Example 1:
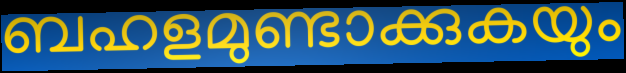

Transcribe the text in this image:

ബഹളമുണ്ടാക്കുകയും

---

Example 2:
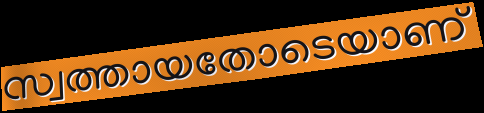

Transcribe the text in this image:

സ്വത്തായതോടെയാണ്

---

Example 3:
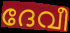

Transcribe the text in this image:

ദേവീ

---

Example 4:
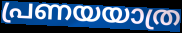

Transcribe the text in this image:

പ്രണയയാത്ര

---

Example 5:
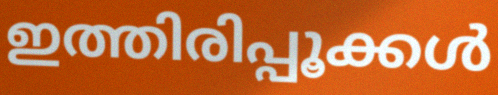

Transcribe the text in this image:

ഇത്തിരിപ്പൂക്കൾ